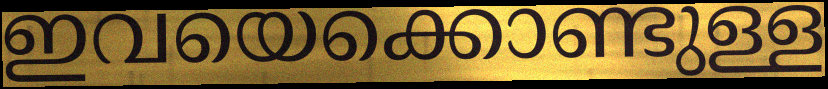
ഇവയെക്കൊണ്ടുള്ള